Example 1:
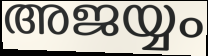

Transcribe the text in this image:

അജയ്യം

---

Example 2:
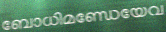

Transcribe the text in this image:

ബോധിമണ്ഡേയേവ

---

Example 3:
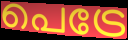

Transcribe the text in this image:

പെട്രേ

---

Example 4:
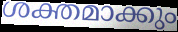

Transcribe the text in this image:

ശക്തമാക്കും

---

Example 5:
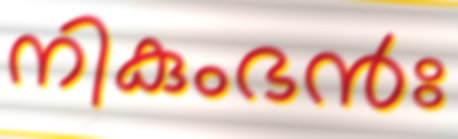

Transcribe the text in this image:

നികുംഭൻഃ